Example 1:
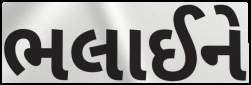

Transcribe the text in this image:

ભલાઈને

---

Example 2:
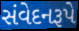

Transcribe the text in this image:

સંવેદનરૂપે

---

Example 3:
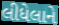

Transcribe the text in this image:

લીધેલાને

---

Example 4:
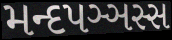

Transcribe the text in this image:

મન્દપઞ્ઞસ્સ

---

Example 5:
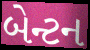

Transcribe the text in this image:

બેન્ટન